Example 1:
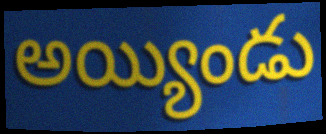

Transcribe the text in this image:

అయ్యిండు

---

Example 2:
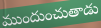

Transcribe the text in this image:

ముందుంచుతాడు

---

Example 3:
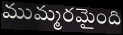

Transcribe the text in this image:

ముమ్మరమైంది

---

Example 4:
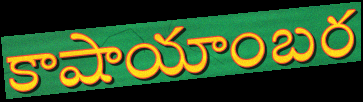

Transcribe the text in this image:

కాషాయాంబర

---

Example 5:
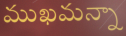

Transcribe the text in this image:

ముఖమన్నా